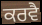
ਕਰਵੈ